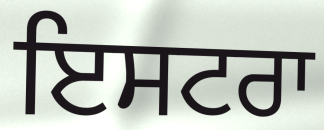
ਇਸਟਰਾ